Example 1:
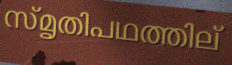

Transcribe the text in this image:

സ്മൃതിപഥത്തില്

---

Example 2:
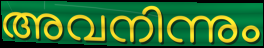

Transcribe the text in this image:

അവനിന്നും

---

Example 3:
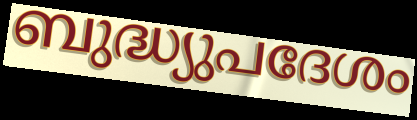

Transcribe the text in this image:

ബുദ്ധ്യുപദേശം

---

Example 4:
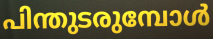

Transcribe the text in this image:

പിന്തുടരുമ്പോൾ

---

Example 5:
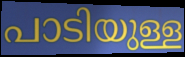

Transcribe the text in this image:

പാടിയുള്ള